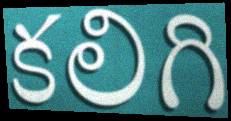
కలిగి